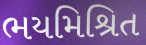
ભયમિશ્રિત